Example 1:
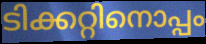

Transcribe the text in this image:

ടിക്കറ്റിനൊപ്പം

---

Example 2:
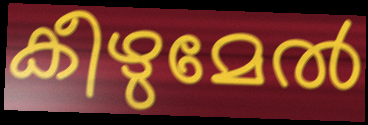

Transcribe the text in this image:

കീഴുമേൽ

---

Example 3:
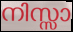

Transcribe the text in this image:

നിസ്സാ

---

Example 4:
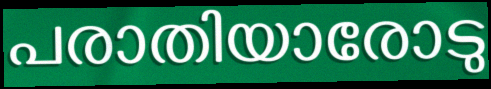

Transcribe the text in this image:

പരാതിയാരോടു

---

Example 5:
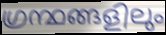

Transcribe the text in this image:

ഗ്രന്ഥങ്ങളിലും